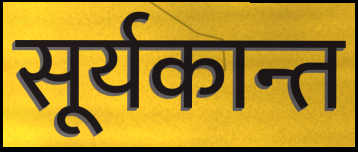
सूर्यकान्त